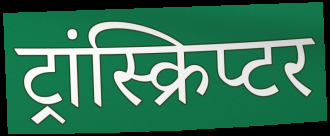
ट्रांस्क्रिप्टर